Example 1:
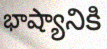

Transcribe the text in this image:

భాష్యానికి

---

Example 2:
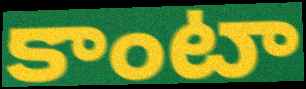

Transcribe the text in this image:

కాంటా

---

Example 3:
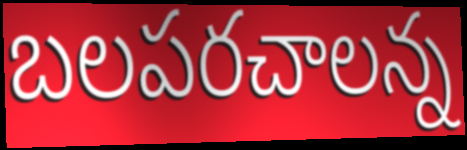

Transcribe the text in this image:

బలపరచాలన్న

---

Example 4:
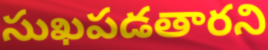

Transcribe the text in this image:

సుఖపడతారని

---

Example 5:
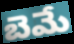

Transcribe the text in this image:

బెమే